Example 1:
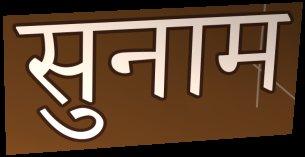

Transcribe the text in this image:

सुनाम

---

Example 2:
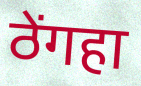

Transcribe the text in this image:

ठेंगहा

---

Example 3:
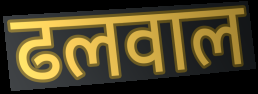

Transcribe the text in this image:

ढलवाल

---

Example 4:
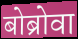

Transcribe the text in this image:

बोब्रोवा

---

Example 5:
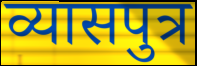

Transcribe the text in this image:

व्यासपुत्र